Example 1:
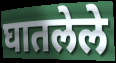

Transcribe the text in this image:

घातलेले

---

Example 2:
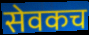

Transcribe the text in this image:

सेवकच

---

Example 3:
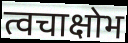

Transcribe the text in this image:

त्वचाक्षोभ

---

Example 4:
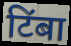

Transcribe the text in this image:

टिंबा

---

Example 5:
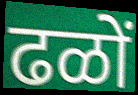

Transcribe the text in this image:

ढळों